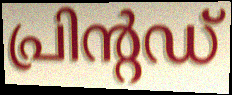
പ്രിന്റഡ്